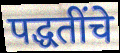
पद्धतींचे